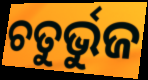
ଚତୁର୍ଭୁଜ